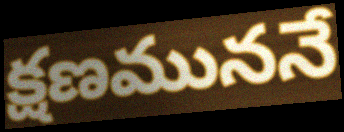
క్షణముననే